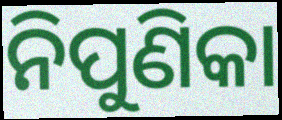
ନିପୁଣିକା